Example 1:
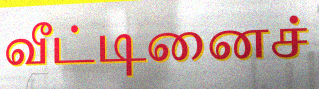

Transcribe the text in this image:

வீட்டினைச்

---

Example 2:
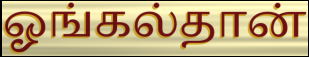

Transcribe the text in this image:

ஓங்கல்தான்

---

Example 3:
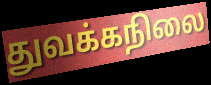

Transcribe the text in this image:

துவக்கநிலை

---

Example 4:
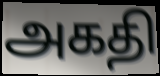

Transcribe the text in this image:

அகதி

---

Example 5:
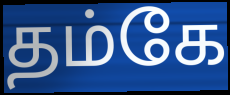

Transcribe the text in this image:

தம்கே